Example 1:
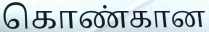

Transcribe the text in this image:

கொண்கான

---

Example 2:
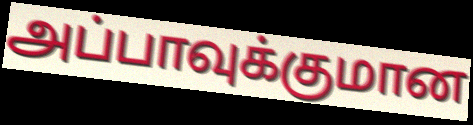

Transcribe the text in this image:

அப்பாவுக்குமான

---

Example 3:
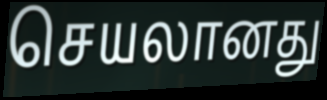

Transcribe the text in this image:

செயலானது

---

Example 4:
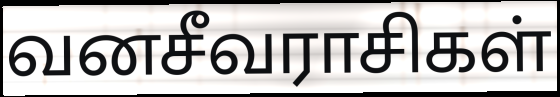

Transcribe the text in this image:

வனசீவராசிகள்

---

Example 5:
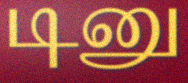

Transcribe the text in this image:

டினு